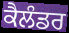
ਕੈਲੰਡਰ